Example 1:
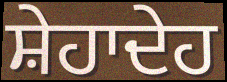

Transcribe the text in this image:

ਸ਼ੇਹਾਦੇਹ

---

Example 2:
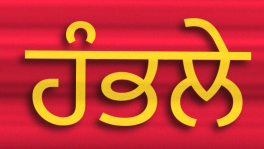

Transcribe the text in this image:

ਹੰਭਲੇ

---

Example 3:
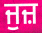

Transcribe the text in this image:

ਜੁਜ਼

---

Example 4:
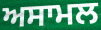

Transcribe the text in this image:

ਅਸਾਮਲ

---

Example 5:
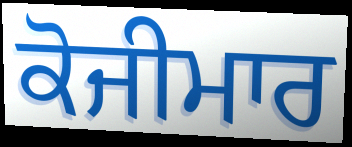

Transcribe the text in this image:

ਕੋਜੀਮਾਰ